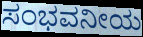
ಸಂಭವನೀಯ